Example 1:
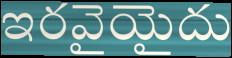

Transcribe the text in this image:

ఇరవైయైదు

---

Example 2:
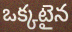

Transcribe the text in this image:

ఒక్కటైన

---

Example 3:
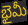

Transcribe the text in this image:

భైమీ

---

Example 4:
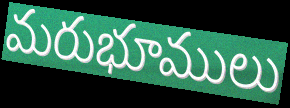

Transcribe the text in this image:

మరుభూములు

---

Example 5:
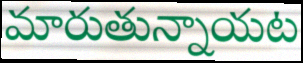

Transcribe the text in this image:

మారుతున్నాయట